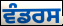
ਵੰਡਰਸ